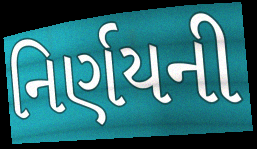
નિર્ણયની